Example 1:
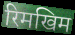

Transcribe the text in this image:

रिमखिम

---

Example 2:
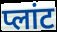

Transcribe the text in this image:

प्लांट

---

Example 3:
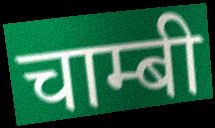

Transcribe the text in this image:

चाम्बी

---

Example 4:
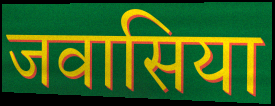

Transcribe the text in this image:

जवासिया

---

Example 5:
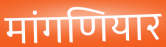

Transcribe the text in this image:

मांगणियार